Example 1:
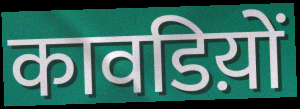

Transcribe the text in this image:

कावडिय़ों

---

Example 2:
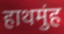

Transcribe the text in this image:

हाथमुंह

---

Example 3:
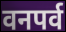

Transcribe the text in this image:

वनपर्व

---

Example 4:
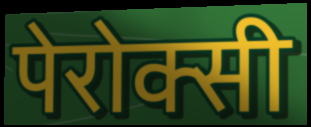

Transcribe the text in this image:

पेरोक्सी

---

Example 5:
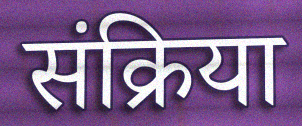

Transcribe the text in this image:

संक्रिया